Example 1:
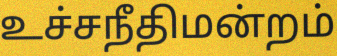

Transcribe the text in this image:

உச்சநீதிமன்றம்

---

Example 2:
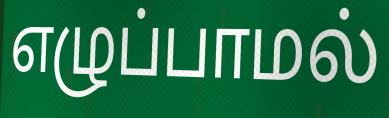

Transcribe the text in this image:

எழுப்பாமல்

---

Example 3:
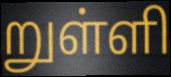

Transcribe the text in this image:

றுள்ளி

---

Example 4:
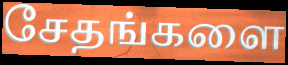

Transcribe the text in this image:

சேதங்களை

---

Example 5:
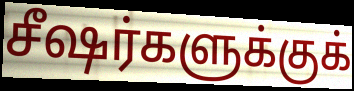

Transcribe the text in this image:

சீஷர்களுக்குக்